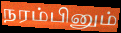
நரம்பினும்